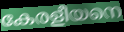
കേരളീയനെ